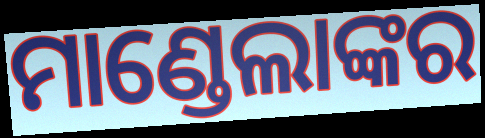
ମାଣ୍ଡେଲାଙ୍କର